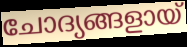
ചോദ്യങ്ങളായ്